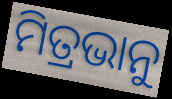
ମିତ୍ରଭାନୁ